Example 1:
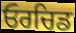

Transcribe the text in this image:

ਓਰਚਿਡ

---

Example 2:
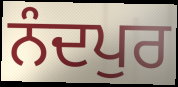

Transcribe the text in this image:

ਨੰਦਪੁਰ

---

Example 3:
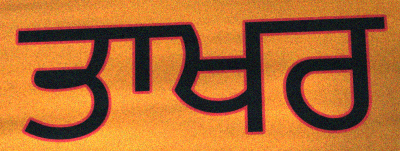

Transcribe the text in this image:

ਤਾਖਰ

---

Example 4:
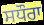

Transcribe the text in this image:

ਸਧੌਰਾ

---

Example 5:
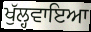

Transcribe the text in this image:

ਖੁੱਲ੍ਹਵਾਇਆ